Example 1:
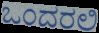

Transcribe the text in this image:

ಒಂದರಲಿ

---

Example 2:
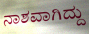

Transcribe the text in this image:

ನಾಶವಾಗಿದ್ದು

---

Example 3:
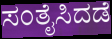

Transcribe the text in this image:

ಸಂತೈಸಿದಡೆ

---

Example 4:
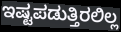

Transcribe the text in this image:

ಇಷ್ಟಪಡುತ್ತಿರಲಿಲ್ಲ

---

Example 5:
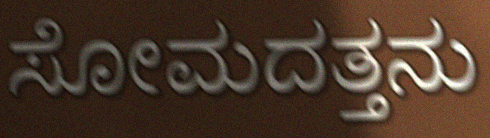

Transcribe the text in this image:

ಸೋಮದತ್ತನು